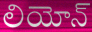
లియోన్